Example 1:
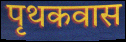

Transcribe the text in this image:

पृथकवास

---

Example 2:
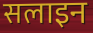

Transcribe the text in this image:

सलाइन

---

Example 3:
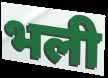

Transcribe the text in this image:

भली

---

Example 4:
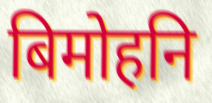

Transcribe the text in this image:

बिमोहनि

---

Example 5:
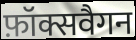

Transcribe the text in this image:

फ़ॉक्सवैगन